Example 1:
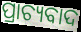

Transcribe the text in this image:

ପ୍ରାଚ୍ୟବାଦ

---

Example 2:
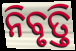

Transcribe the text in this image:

ନିବୃତ୍ତି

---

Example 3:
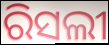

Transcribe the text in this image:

ରିସଲୀ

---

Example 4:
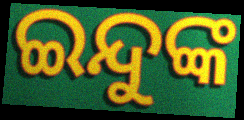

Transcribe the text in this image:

ଇନ୍ଦୁଙ୍କ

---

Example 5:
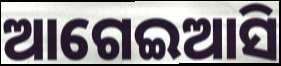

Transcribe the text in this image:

ଆଗେଇଆସି